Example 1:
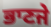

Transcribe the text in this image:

ਭਾਣਜੇ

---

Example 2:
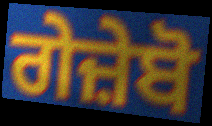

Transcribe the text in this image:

ਗੇਜ਼ੇਬੋ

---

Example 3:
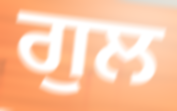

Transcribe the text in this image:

ਗੁਲ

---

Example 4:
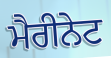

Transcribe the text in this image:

ਮੈਰੀਨੇਟ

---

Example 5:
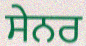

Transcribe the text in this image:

ਸੇਨਰ